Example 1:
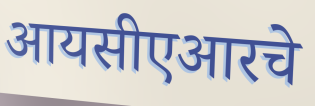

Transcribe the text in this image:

आयसीएआरचे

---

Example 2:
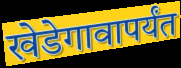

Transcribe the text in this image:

खेडेगावापर्यंत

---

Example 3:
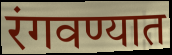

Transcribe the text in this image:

रंगवण्यात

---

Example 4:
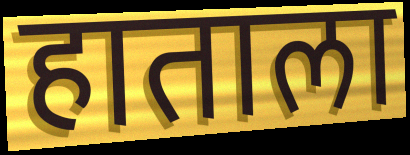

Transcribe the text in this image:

हाताला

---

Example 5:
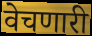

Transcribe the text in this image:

वेचणारी